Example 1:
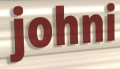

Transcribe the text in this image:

johni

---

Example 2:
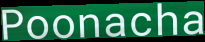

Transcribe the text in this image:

Poonacha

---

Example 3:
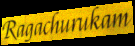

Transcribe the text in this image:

Ragachurukam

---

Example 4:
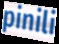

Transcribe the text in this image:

pinili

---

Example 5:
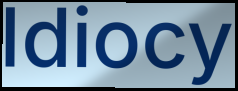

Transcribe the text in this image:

Idiocy